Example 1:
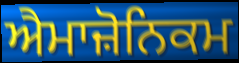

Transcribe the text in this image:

ਐਮਾਜ਼ੋਨਿਕਮ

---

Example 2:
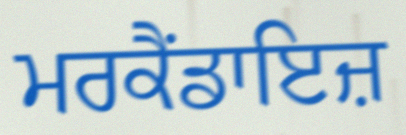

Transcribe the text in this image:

ਮਰਕੈਂਡਾਇਜ਼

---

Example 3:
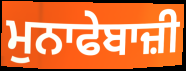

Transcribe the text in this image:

ਮੁਨਾਫੇਬਾਜ਼ੀ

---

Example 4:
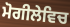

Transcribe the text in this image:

ਮੋਗੀਲੇਵਿਚ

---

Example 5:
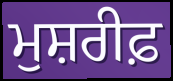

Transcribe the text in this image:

ਮੁਸ਼ਰੀਫ਼